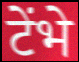
टेंभे